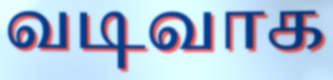
வடிவாக